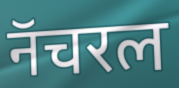
नॅचरल